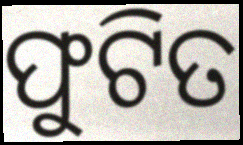
ଫୁଟିତ